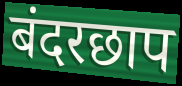
बंदरछाप